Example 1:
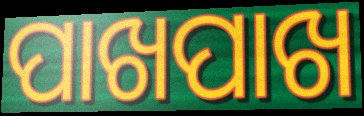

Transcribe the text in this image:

ପାଖପାଖ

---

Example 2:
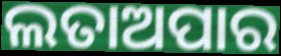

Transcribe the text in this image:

ଲତାଅପାର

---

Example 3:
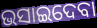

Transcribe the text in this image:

ଭସାଇଦେବା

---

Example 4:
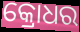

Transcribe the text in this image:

କ୍ରୋଧର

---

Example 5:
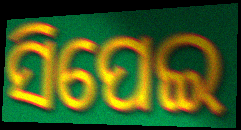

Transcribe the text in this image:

ସିପେଇ